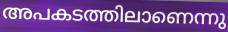
അപകടത്തിലാണെന്നു